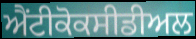
ਐਂਟੀਕੋਕਸੀਡੀਅਲ